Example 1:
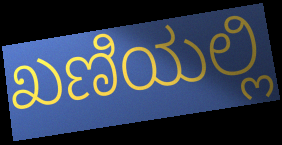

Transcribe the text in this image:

ಖಣಿಯಲ್ಲಿ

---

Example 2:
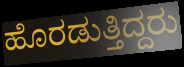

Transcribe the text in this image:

ಹೊರಡುತ್ತಿದ್ದರು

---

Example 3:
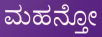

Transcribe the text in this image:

ಮಹನ್ತೋ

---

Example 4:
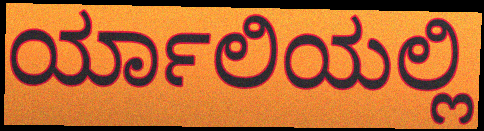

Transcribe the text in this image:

ರ್ಯಾಲಿಯಲ್ಲಿ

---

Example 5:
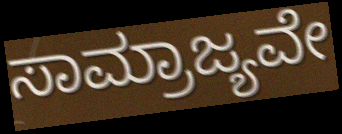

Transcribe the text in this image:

ಸಾಮ್ರಾಜ್ಯವೇ